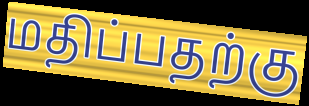
மதிப்பதற்கு